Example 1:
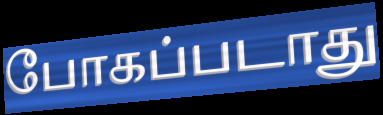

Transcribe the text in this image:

போகப்படாது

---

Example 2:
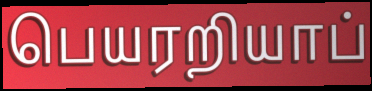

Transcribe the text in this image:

பெயரறியாப்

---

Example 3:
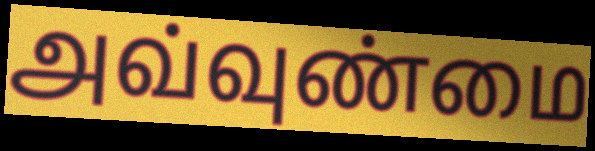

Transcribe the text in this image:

அவ்வுண்மை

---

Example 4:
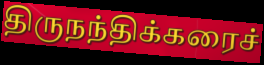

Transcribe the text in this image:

திருநந்திக்கரைச்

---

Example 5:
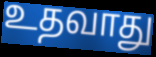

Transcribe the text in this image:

உதவாது